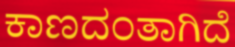
ಕಾಣದಂತಾಗಿದೆ